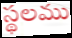
స్థలము